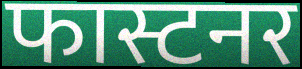
फास्टनर